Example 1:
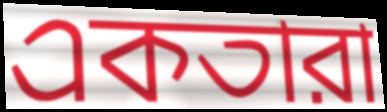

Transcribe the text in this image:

একতারা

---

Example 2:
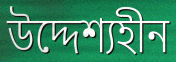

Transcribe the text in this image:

উদ্দেশ্যহীন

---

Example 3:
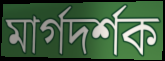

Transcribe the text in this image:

মার্গদর্শক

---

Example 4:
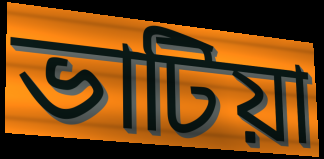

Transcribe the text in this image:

ভাটিয়া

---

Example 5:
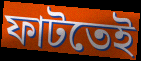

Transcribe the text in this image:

ফাটতেই